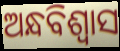
ଅନ୍ଧବିଶ୍ଵାସ